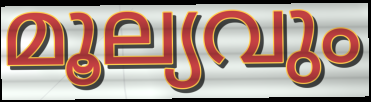
മൂല്യവും